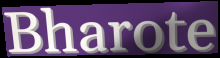
Bharote